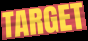
TARGET